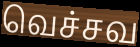
வெச்சவ